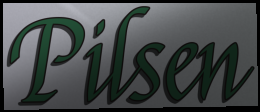
Pilsen